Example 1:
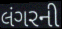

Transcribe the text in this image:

લંગરની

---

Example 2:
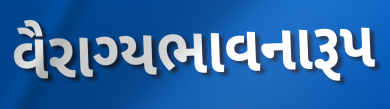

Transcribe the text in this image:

વૈરાગ્યભાવનારૂપ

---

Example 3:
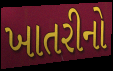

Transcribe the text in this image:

ખાતરીનો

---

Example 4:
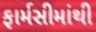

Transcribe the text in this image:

ફાર્મસીમાંથી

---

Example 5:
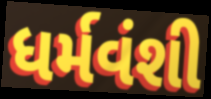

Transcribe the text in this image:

ધર્મવંશી